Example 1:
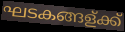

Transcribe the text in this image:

ഘടകങ്ങള്ക്ക്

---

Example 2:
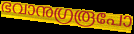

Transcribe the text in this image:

ഭവാനുഗ്രരൂപോ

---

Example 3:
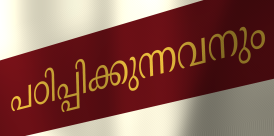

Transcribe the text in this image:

പഠിപ്പിക്കുന്നവനും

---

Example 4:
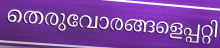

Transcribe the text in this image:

തെരുവോരങ്ങളെപ്പറ്റി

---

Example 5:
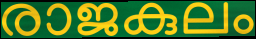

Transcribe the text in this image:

രാജകുലം